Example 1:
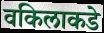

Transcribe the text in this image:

वकिलाकडे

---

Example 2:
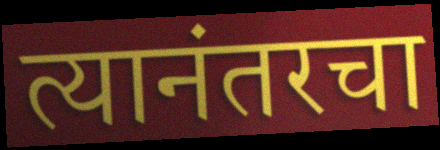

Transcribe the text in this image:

त्यानंतरचा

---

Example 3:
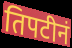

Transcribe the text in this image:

तिपटीनं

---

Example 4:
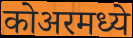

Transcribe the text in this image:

कोअरमध्ये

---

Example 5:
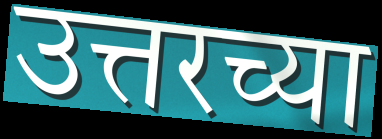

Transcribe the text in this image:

उत्तरच्या